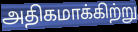
அதிகமாக்கிற்று